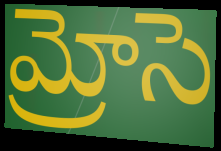
మ్రోసె